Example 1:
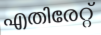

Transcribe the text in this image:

എതിരേറ്റ്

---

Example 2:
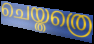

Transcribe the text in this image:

ചെയ്തത്രെ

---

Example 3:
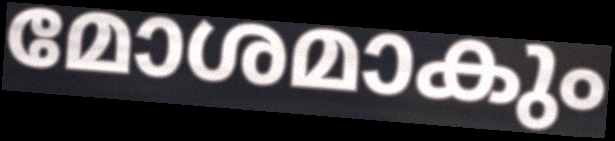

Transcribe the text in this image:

മോശമാകും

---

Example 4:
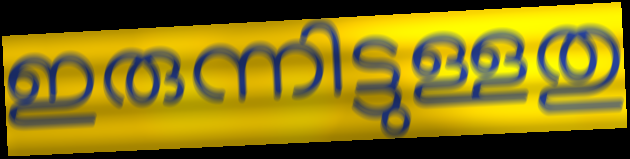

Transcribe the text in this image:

ഇരുന്നിട്ടുള്ളതു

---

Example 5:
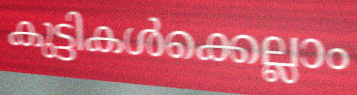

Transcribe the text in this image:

കുട്ടികൾക്കെല്ലാം